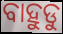
ବାହୁଡୁ